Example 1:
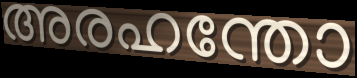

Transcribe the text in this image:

അരഹന്തോ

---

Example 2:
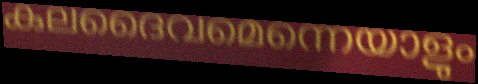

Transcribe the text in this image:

കുലദൈവമെന്നെയാളും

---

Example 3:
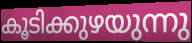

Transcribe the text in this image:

കൂടിക്കുഴയുന്നു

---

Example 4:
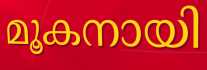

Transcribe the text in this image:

മൂകനായി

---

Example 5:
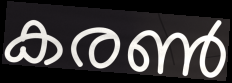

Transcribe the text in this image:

കരൺ